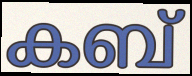
കബ്